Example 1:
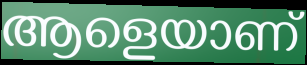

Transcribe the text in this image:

ആളെയാണ്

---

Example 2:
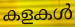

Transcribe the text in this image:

കളകൾ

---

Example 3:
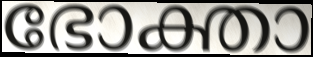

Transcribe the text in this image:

ഭോക്താ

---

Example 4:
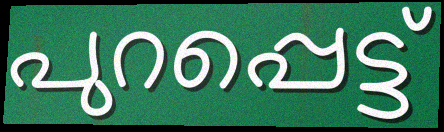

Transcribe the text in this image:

പുറപ്പെട്ട്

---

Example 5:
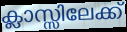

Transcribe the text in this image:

ക്ലാസ്സിലേക്ക്